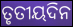
ତୃତୀୟଦିନ